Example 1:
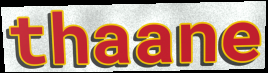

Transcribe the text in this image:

thaane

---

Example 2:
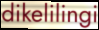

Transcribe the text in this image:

dikelilingi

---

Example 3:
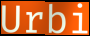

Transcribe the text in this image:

Urbi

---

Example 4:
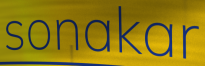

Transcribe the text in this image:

sonakar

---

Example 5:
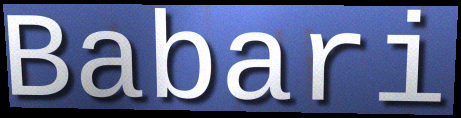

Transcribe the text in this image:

Babari